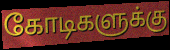
கோடிகளுக்கு